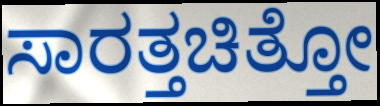
ಸಾರತ್ತಚಿತ್ತೋ